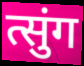
त्सुंग